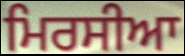
ਮਿਰਸੀਆ